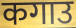
कगाउ